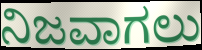
ನಿಜವಾಗಲು